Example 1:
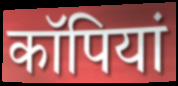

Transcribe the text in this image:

कॉपियां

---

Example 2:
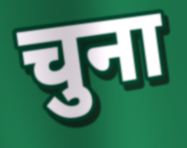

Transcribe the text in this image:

चुना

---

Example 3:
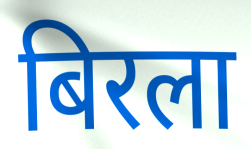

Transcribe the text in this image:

बिरला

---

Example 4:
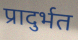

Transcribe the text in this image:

प्रादुर्भत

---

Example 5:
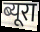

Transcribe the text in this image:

ब्यूरा